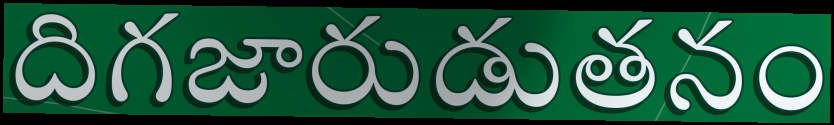
దిగజారుడుతనం